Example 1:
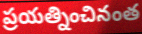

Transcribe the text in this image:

ప్రయత్నించినంత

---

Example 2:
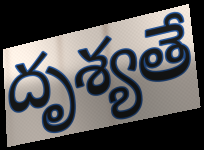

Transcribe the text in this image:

దృశ్యతే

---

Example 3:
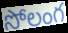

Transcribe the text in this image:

సోలంగ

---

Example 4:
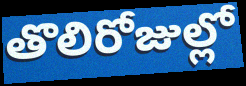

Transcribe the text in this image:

తొలిరోజుల్లో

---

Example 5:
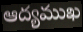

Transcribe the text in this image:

ఆద్యముఖ